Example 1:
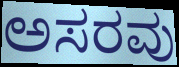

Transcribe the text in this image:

ಅಸರವು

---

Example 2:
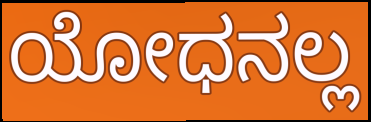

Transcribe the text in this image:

ಯೋಧನಲ್ಲ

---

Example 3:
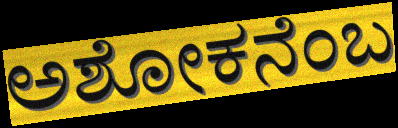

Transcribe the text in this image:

ಅಶೋಕನೆಂಬ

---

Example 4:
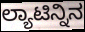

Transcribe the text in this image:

ಲ್ಯಾಟಿನ್ನಿನ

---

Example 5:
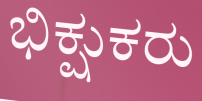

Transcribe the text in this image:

ಭಿಕ್ಷುಕರು